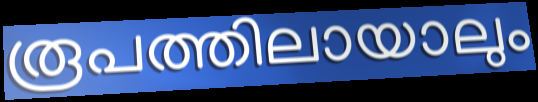
രൂപത്തിലായാലും